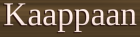
Kaappaan